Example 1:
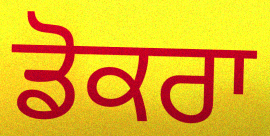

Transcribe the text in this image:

ਡੋਕਰਾ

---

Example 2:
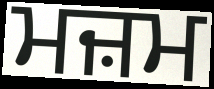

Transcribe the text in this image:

ਮਜ਼ਮ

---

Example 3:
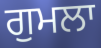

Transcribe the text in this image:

ਗੁਮਲਾ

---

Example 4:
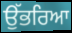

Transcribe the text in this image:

ਉੱਭਰਿਆ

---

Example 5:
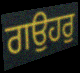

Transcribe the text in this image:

ਗਉਹਰੁ